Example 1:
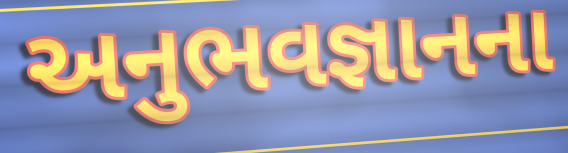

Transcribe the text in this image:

અનુભવજ્ઞાનના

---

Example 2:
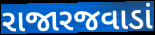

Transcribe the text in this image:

રાજારજવાડાં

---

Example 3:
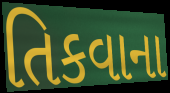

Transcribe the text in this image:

તિકવાના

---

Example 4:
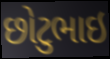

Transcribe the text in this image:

છોટુભાઇ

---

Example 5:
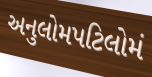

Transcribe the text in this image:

અનુલોમપટિલોમં